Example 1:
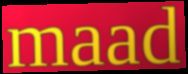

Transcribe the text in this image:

maad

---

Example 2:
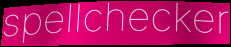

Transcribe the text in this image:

spellchecker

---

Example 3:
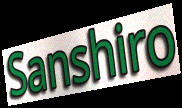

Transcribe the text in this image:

Sanshiro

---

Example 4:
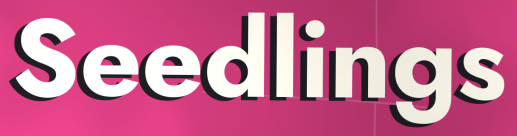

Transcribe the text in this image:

Seedlings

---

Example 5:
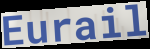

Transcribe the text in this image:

Eurail